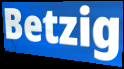
Betzig